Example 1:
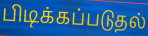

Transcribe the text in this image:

பிடிக்கப்படுதல்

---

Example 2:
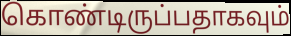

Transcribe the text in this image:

கொண்டிருப்பதாகவும்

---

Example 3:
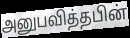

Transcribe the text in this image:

அனுபவித்தபின்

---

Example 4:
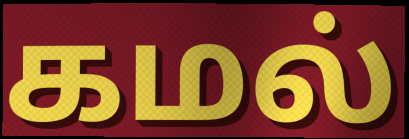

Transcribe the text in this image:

கமல்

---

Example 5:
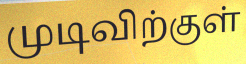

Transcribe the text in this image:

முடிவிற்குள்